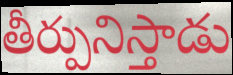
తీర్పునిస్తాడు